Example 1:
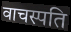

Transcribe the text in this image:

वाचस्पति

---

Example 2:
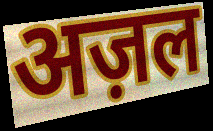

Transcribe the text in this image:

अज़ल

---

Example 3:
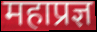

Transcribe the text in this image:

महाप्रज्ञ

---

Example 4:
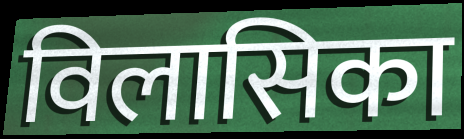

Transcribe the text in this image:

विलासिका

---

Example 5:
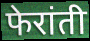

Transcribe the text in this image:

फेरांती